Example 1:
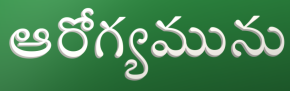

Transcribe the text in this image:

ఆరోగ్యమును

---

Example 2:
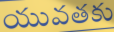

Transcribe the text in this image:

యువతకు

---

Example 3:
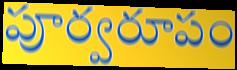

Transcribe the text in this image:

పూర్వరూపం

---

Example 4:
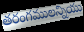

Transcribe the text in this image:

తరంగములన్నియు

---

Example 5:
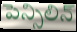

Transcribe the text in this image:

పెన్సిలిన్